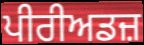
ਪੀਰੀਅਡਜ਼